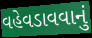
વહેવડાવવાનું